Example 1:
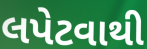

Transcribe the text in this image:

લપેટવાથી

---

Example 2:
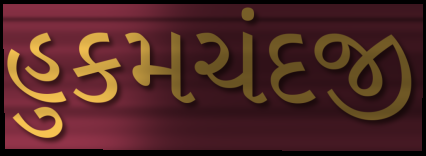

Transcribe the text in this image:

હુકમચંદજી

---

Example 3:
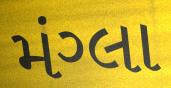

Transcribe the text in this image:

મંગ્લા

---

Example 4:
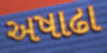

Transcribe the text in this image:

અષાઢા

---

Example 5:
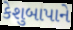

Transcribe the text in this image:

કેશુબાપાને